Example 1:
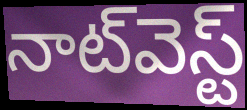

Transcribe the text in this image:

నాట్‌వెస్ట్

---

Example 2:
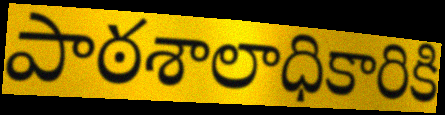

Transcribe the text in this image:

పాఠశాలాధికారికి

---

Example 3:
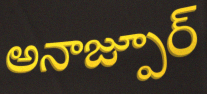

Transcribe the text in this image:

అనాజ్పూర్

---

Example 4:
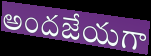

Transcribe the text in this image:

అందజేయగా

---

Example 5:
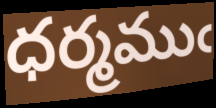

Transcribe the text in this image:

ధర్మముఁ